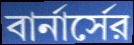
বার্নার্সের